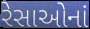
રેસાઓનાં